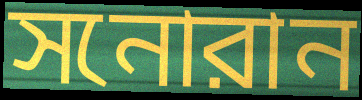
সনোরান